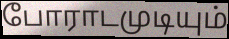
போராடமுடியும்